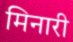
मिनारी